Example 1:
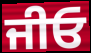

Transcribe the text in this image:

ਜੀਓ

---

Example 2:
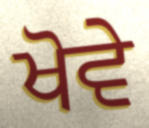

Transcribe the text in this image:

ਖੋਵੇ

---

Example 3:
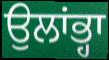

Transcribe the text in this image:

ਉਲਾਂਭ੍ਹਾ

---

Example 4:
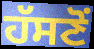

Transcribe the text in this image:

ਹੱਸਣੋਂ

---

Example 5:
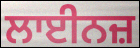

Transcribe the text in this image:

ਲਾਈਨਜ਼